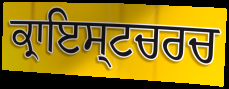
ਕ੍ਰਾਇਸ੍ਟਚਰਚ